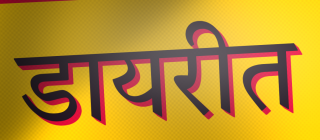
डायरीत